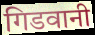
गिडवानी